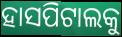
ହାସପିଟାଲକୁ